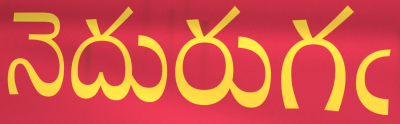
నెదురుగఁ